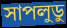
সাপলুডু